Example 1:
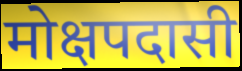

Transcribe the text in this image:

मोक्षपदासी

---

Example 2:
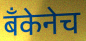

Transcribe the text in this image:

बँकेनेच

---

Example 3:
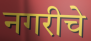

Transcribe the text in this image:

नगरीचे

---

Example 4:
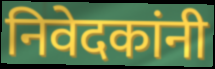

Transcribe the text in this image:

निवेदकांनी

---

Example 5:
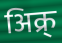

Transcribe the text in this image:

अिक्र्